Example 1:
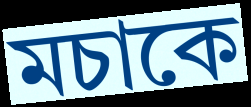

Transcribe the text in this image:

মচাকে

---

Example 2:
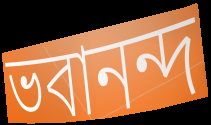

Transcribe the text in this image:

ভবানন্দ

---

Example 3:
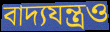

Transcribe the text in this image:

বাদ্যযন্ত্রও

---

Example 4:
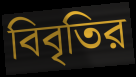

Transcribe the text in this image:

বিবৃতির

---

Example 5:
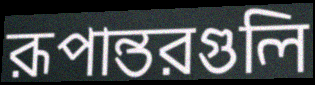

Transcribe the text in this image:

রূপান্তরগুলি